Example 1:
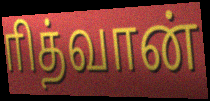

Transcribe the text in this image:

ரித்வான்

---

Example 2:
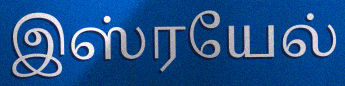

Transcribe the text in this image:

இஸ்ரயேல்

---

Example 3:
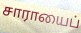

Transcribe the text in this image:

சாராயைப்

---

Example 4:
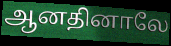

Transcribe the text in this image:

ஆனதினாலே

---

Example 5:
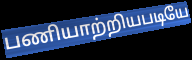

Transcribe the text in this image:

பணியாற்றியபடியே